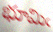
భూమిఁ